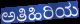
ಅತಿಹಿರಿಯ